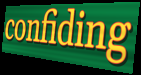
confiding